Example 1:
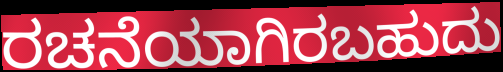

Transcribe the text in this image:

ರಚನೆಯಾಗಿರಬಹುದು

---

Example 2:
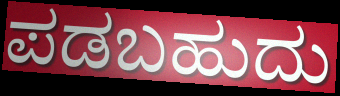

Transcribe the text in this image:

ಪಡಬಹುದು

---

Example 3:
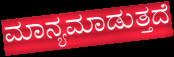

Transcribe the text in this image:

ಮಾನ್ಯಮಾಡುತ್ತದೆ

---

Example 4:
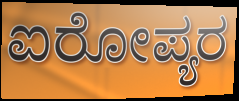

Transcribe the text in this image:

ಐರೋಪ್ಯರ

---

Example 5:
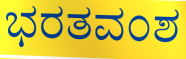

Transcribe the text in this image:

ಭರತವಂಶ